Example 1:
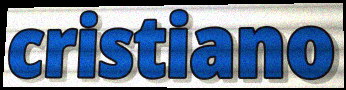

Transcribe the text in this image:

cristiano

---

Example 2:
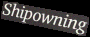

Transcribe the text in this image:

Shipowning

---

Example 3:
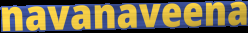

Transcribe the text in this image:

navanaveena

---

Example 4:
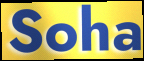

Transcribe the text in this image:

Soha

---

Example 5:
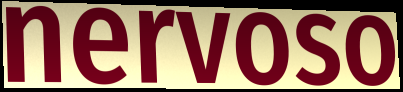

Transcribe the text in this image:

nervoso